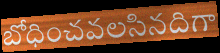
బోధించవలసినదిగా